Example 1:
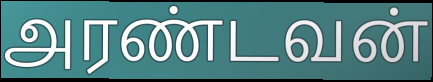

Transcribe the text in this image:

அரண்டவன்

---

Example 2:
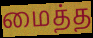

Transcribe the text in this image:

மைத்த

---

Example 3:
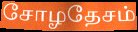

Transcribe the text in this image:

சோழதேசம்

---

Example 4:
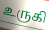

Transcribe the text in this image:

உருகி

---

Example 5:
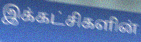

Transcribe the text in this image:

இக்கட்சிகளின்